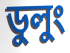
ডুলুং